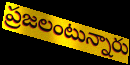
ప్రజలంటున్నారు